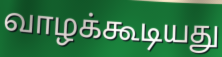
வாழக்கூடியது